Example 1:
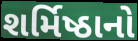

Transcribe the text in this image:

શર્મિષ્ઠાનો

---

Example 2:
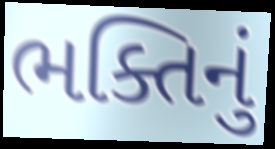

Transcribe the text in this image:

ભક્તિનું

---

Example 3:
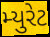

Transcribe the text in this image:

મ્યુરેટ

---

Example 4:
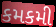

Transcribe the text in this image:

કમકમી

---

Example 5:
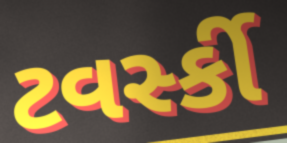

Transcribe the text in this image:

ટવર્સ્કી